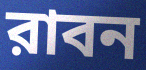
রাবন